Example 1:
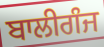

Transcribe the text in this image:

ਬਾਲੀਗੰਜ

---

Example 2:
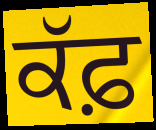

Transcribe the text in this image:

ਕੱਫ਼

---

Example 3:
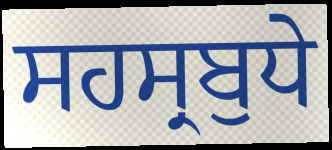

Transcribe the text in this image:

ਸਹਸ੍ਰਬੁਧੇ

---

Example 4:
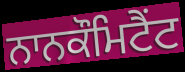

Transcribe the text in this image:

ਨਾਨਕੌਮਿਟੈਂਟ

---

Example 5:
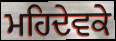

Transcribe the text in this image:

ਮਹਿਦੇਵਕੇ